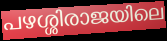
പഴശ്ശിരാജയിലെ